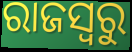
ରାଜସ୍ବରୁ